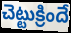
చెట్టుక్రిందే